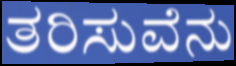
ತರಿಸುವೆನು